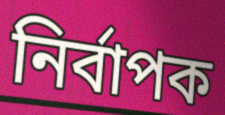
নির্বাপক